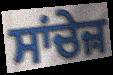
ਸਾਂਚੇਜ਼